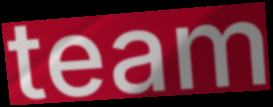
team